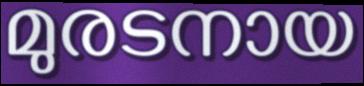
മുരടനായ